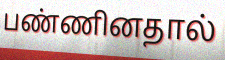
பண்ணினதால்